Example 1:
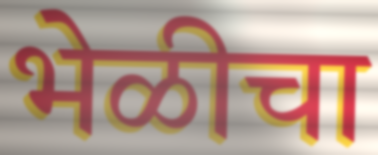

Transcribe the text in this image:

भेळीचा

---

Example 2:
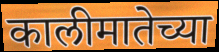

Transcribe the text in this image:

कालीमातेच्या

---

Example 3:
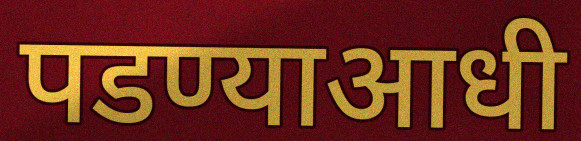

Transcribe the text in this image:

पडण्याआधी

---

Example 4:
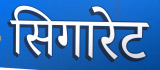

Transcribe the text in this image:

सिगारेट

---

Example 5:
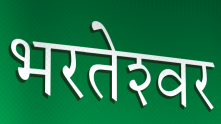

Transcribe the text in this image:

भरतेश्वर